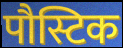
पौस्टिक